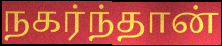
நகர்ந்தான்